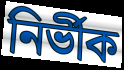
নিৰ্ভীক